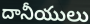
దానీయులు